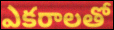
ఎకరాలతో